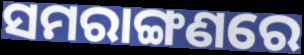
ସମରାଙ୍ଗଣରେ